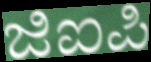
ಜಿಐಪಿ